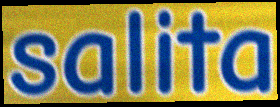
salita